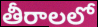
తీరాలలో